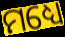
ମଧ୍ୟେ